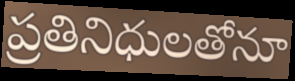
ప్రతినిధులతోనూ